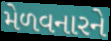
મેળવનારને